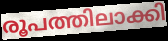
രൂപത്തിലാക്കി